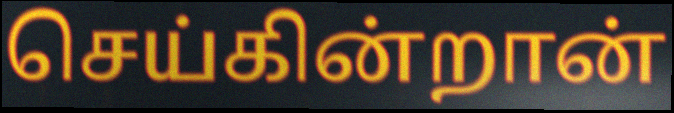
செய்கின்றான்